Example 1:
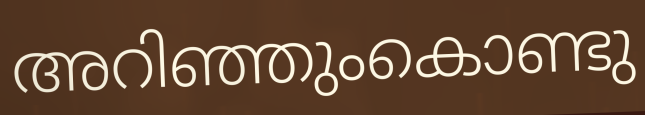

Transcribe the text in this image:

അറിഞ്ഞുംകൊണ്ടു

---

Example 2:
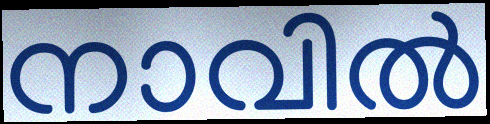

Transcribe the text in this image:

നാവിൽ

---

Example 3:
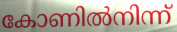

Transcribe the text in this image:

കോണിൽനിന്ന്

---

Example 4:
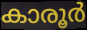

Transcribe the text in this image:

കാരൂർ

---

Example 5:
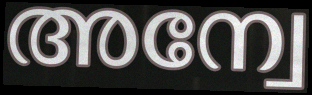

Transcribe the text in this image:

അന്വേ